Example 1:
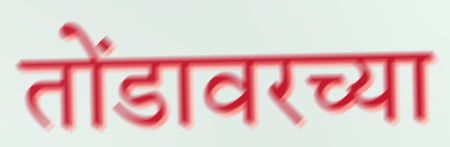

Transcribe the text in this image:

तोंडावरच्या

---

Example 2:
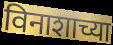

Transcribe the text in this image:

विनाशाच्या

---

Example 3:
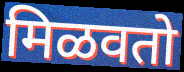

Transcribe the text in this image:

मिळवतो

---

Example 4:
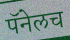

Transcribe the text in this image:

पॅनेलच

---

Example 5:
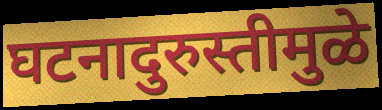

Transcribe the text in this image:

घटनादुरुस्तीमुळे